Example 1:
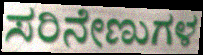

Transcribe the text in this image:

ಸರಿನೇಣುಗಳ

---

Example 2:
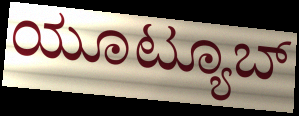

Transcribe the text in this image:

ಯೂಟ್ಯೂಬ್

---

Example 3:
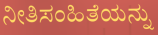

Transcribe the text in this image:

ನೀತಿಸಂಹಿತೆಯನ್ನು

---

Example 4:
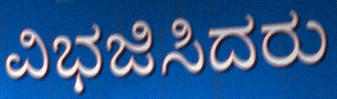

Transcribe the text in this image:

ವಿಭಜಿಸಿದರು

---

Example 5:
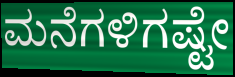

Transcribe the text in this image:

ಮನೆಗಳಿಗಷ್ಟೇ